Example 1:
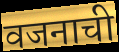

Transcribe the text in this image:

वजनाची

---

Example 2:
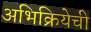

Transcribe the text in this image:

अभिक्रियेची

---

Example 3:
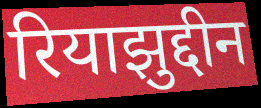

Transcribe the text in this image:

रियाझुद्दीन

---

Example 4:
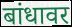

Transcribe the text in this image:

बांधावर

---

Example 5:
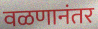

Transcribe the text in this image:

वळणानंतर